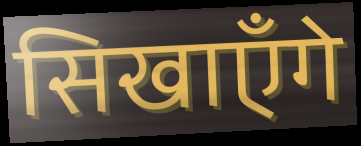
सिखाएँगे